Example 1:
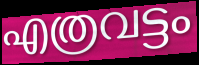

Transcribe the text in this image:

എത്രവട്ടം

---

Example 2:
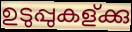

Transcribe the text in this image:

ഉടുപ്പുകള്ക്കു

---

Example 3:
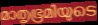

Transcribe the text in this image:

മാതൃഭൂമിയുടെ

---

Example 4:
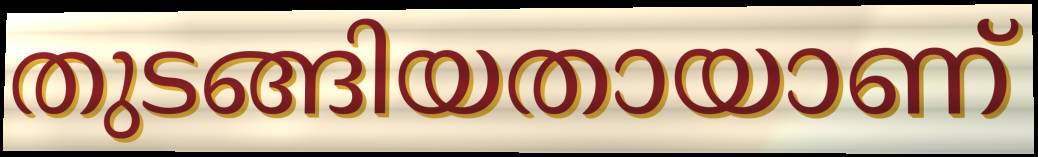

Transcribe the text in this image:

തുടങ്ങിയതായാണ്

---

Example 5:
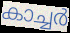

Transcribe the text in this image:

കാച്ചർ